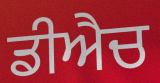
ਡੀਐਚ